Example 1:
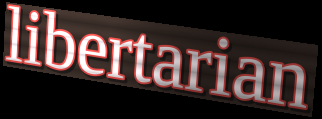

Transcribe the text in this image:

libertarian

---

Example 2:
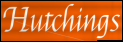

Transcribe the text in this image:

Hutchings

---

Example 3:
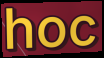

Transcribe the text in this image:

hoc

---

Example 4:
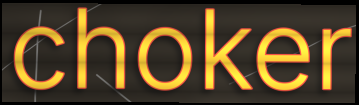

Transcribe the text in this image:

choker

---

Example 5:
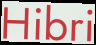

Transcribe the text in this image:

Hibri